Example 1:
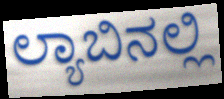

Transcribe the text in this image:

ಲ್ಯಾಬಿನಲ್ಲಿ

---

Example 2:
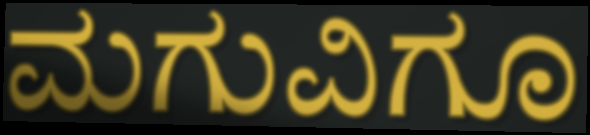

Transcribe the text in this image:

ಮಗುವಿಗೂ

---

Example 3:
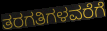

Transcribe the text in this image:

ತರಗತಿಗಳವರೆಗೆ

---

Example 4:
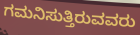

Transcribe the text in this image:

ಗಮನಿಸುತ್ತಿರುವವರು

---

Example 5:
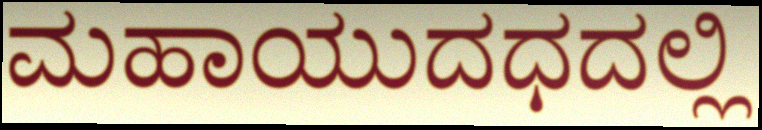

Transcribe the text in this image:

ಮಹಾಯುದಧದಲ್ಲಿ